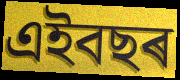
এইবছৰ